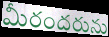
మీరందరును